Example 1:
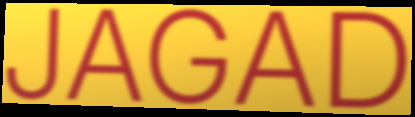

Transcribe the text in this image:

JAGAD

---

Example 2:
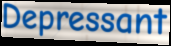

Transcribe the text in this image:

Depressant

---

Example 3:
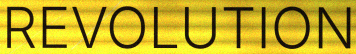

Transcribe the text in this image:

REVOLUTION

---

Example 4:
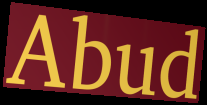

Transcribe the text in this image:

Abud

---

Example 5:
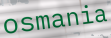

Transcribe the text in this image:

osmania